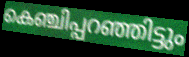
കെഞ്ചിപ്പറഞ്ഞിട്ടും